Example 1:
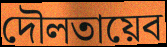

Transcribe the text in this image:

দৌলতায়েব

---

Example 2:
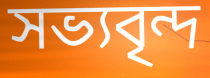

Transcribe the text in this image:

সভ্যবৃন্দ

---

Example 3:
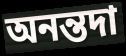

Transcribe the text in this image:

অনন্তদা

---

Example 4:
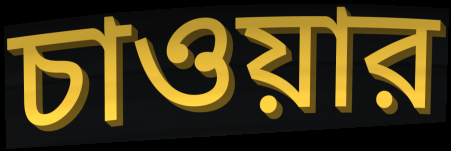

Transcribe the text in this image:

চাওয়ার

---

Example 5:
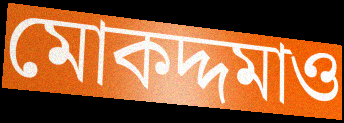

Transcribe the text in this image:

মোকদ্দমাও